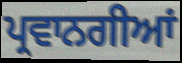
ਪ੍ਰਵਾਨਗੀਆਂ